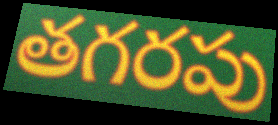
తగరపు